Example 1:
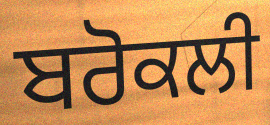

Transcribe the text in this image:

ਬਰੋਕਲੀ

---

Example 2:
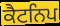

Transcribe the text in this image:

ਕੈਟਨਿਪ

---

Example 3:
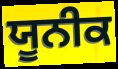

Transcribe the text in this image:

ਯੂਨੀਕ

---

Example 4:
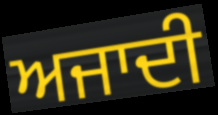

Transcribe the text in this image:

ਅਜਾਦੀ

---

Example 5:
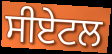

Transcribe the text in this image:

ਸੀਏਟਲ